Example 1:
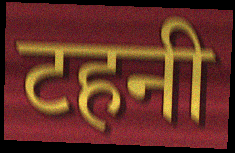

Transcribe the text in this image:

टहनी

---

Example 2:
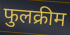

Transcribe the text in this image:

फुलक्रीम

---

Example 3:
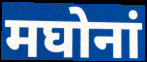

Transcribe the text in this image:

मघोनां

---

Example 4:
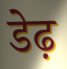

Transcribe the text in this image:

डेढ़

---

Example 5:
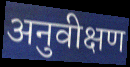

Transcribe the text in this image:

अनुवीक्षण